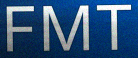
FMT